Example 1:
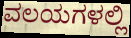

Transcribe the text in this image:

ವಲಯಗಳಲ್ಲಿ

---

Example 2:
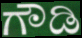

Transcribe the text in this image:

ಗೌಡಿ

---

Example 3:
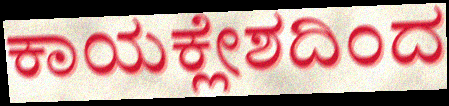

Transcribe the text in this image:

ಕಾಯಕ್ಲೇಶದಿಂದ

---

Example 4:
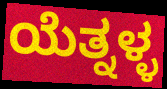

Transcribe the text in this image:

ಯೆತ್ನಳ್ಳ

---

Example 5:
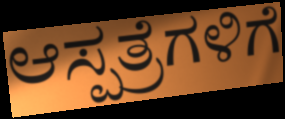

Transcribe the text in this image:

ಆಸ್ಪತ್ರೆಗಳಿಗೆ